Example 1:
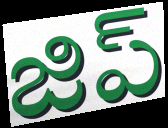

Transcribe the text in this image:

జిప్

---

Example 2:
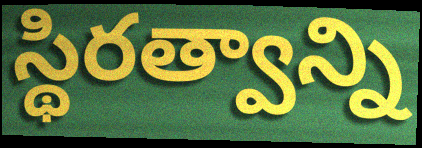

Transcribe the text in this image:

స్థిరత్వాన్ని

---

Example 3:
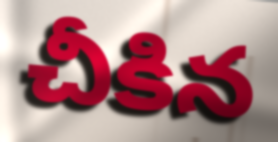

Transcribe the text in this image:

చీకిన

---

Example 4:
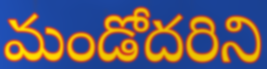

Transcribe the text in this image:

మండోదరిని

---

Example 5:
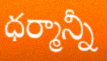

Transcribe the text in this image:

ధర్మాన్నీ